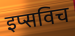
इप्सविच